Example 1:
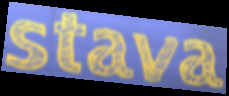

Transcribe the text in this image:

stava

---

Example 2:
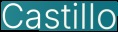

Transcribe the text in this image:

Castillo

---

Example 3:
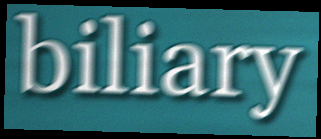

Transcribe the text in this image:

biliary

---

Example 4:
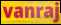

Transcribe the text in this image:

vanraj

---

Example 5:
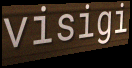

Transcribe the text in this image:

visigi